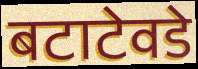
बटाटेवडे